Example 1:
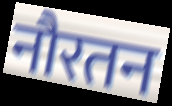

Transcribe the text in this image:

नौरतन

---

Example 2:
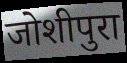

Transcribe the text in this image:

जोशीपुरा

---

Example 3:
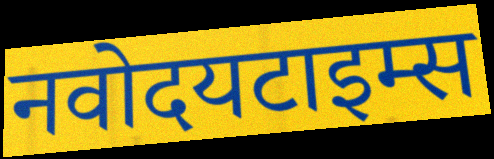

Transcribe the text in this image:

नवोदयटाइम्स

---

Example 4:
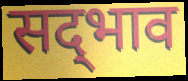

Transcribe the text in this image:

सद्‍भाव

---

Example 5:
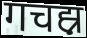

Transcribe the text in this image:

गचह्न